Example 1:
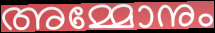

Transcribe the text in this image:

അമ്മോനും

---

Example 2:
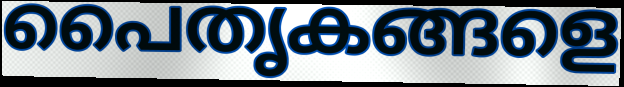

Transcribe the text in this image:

പൈതൃകങ്ങളെ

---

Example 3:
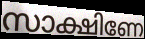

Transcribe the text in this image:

സാക്ഷിണേ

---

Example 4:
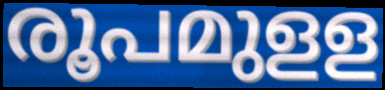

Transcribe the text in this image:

രൂപമുളള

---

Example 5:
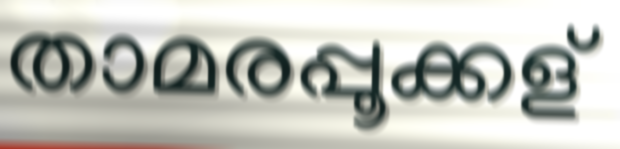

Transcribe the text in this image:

താമരപ്പൂക്കള്